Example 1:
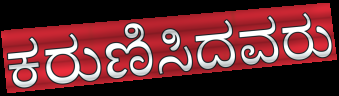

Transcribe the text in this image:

ಕರುಣಿಸಿದವರು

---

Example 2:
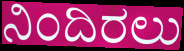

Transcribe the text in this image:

ನಿಂದಿರಲು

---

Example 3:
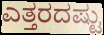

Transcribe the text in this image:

ಎತ್ತರದಷ್ಟು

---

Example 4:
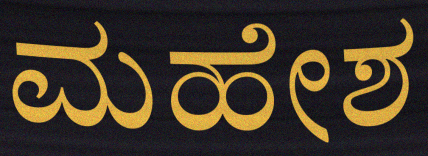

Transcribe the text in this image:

ಮಹೇಶ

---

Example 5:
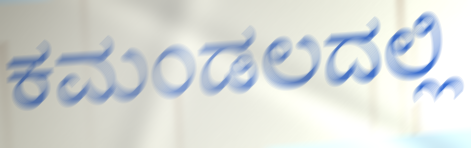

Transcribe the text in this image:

ಕಮಂಡಲದಲ್ಲಿ